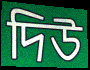
দিউ